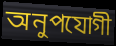
অনুপযোগী